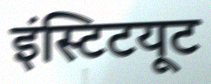
इंस्टिटयूट